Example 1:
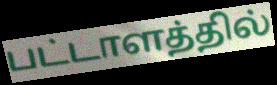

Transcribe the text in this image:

பட்டாளத்தில்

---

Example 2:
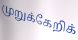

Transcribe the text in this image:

முறுக்கேறிக்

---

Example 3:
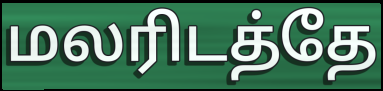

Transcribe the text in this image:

மலரிடத்தே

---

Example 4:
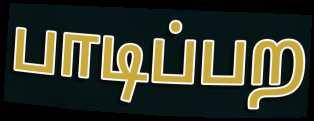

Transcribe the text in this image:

பாடிப்பற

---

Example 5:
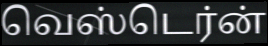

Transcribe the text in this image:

வெஸ்டெர்ன்